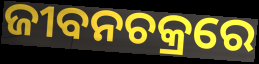
ଜୀବନଚକ୍ରରେ